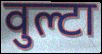
वुल्टा